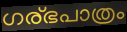
ഗര്ഭപാത്രം